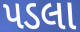
પડલા